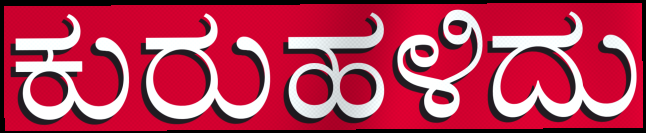
ಕುರುಹಳಿದು